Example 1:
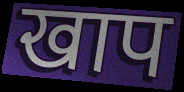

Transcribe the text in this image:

खाप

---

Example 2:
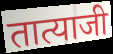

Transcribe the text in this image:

तात्याजी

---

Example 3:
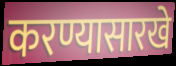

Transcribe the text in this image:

करण्यासारखे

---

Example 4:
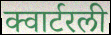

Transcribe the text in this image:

क्वार्टरली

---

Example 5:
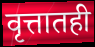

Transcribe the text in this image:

वृत्तातही